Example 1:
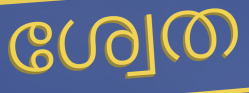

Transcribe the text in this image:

ശ്വേത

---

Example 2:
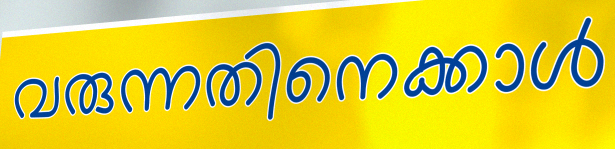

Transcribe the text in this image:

വരുന്നതിനെക്കാൾ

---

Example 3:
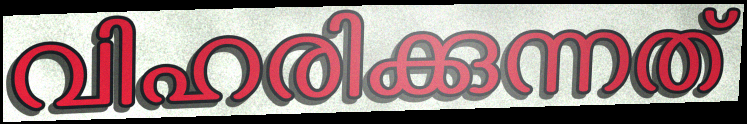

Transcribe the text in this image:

വിഹരിക്കുന്നത്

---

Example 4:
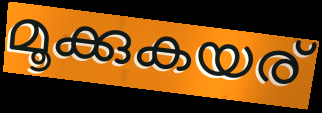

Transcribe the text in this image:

മൂക്കുകയര്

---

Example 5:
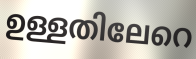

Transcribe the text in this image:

ഉള്ളതിലേറെ